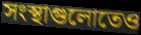
সংস্থাগুলোতেও